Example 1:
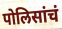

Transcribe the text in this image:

पोलिसांचं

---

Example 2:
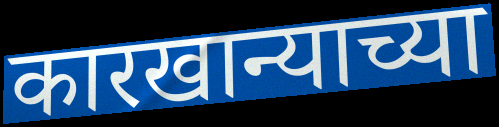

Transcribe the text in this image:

कारखान्याच्या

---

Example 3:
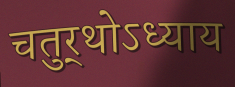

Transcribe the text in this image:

चतुर्थोऽध्याय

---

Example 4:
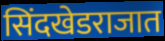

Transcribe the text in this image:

सिंदखेडराजात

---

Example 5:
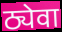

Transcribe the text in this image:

ठ्येवा